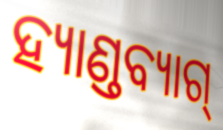
ହ୍ୟାଣ୍ଡବ୍ୟାଗ୍